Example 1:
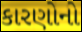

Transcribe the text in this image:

કારણોનો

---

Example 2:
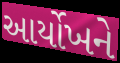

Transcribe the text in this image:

આર્યોખને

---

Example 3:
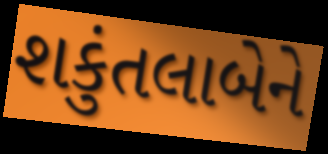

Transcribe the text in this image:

શકુંતલાબેને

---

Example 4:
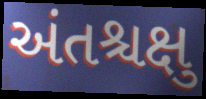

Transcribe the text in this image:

અંતશ્ચક્ષુ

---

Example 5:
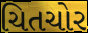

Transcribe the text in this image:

ચિતચોર